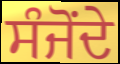
ਸੰਜੋਂਦੇ